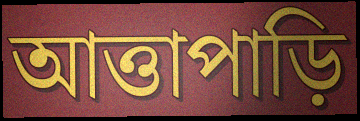
আত্তাপাড়ি